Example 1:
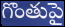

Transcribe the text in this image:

గొంతుపై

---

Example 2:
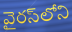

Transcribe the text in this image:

వైరస్‌లోని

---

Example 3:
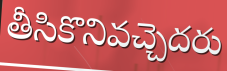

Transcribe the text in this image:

తీసికొనివచ్చెదరు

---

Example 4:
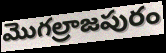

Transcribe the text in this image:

మొగల్రాజపురం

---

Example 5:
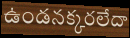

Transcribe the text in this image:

ఉండనక్కరలేదా